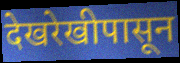
देखरेखीपासून